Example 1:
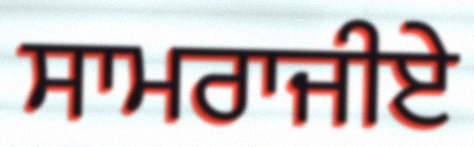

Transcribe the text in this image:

ਸਾਮਰਾਜੀਏ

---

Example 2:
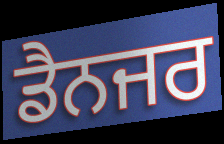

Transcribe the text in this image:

ਡੈਨਜਰ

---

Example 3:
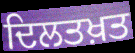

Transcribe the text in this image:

ਦਿਲਤਖ਼ਤ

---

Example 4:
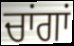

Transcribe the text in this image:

ਚਾਂਗਾਂ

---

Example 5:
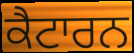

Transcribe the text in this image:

ਕੈਟਾਰਨ